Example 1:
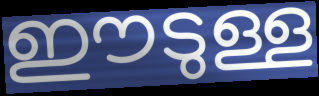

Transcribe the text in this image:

ഈടുള്ള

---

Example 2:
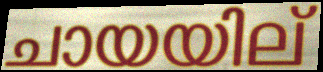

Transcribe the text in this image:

ചായയില്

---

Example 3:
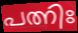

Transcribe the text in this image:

പത്നിഃ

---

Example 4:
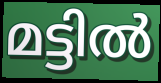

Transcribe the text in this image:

മട്ടിൽ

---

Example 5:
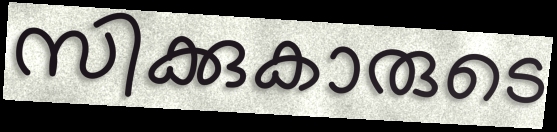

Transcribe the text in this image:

സിക്കുകാരുടെ